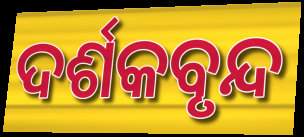
ଦର୍ଶକବୃନ୍ଦ